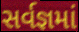
સર્વજ્ઞમાં